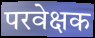
परवेक्षक